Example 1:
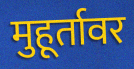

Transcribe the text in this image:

मुहूर्तावर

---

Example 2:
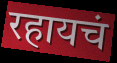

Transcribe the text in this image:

रहायचं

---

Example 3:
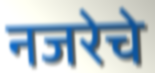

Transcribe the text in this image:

नजरेचे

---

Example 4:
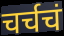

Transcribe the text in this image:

चर्चचं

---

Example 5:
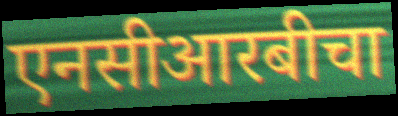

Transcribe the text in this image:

एनसीआरबीचा